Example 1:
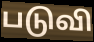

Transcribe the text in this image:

படுவி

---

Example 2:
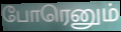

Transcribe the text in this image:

போரெனும்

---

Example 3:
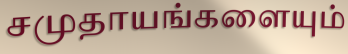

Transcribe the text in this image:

சமுதாயங்களையும்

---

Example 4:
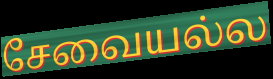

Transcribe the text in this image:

சேவையல்ல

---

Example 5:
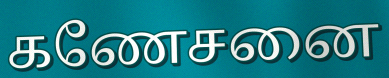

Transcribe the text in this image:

கணேசனை